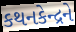
કથનકેન્દ્રને